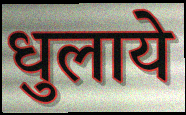
धुलाये